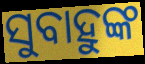
ସୁବାହୁଙ୍କ